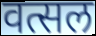
वत्सल